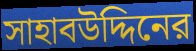
সাহাবউদ্দিনের